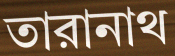
তারানাথ